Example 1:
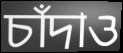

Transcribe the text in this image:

চাঁদাও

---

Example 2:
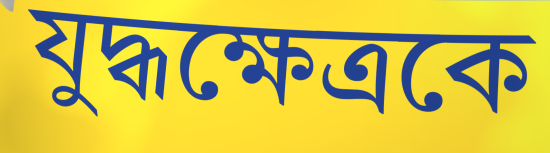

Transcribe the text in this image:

যুদ্ধক্ষেত্রকে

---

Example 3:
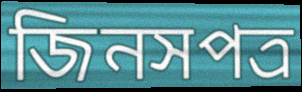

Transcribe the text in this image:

জিনসপত্র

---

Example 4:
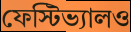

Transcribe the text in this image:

ফেস্টিভ্যালও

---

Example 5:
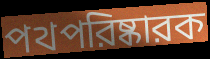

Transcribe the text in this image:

পথপরিষ্কারক